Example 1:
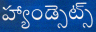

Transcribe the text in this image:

హ్యాండ్సెట్స్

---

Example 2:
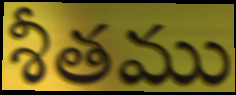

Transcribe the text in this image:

శీతము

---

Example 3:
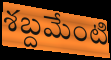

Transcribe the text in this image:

శబ్దమేంటి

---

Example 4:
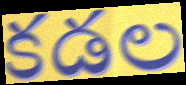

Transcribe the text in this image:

కడల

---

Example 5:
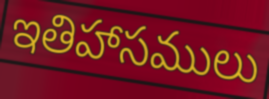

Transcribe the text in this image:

ఇతిహాసములు